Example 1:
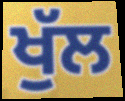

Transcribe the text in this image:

ਖੁੱਲ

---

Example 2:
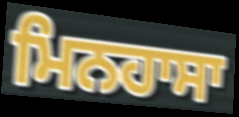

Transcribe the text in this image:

ਮਿਨਹਾਸਾ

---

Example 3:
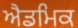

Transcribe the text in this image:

ਐਡਮਿਕ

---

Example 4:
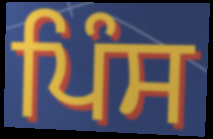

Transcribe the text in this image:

ਪਿੰਸ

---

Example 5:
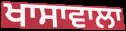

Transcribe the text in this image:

ਖਾਸਾਵਾਲਾ